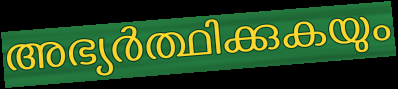
അഭ്യർത്ഥിക്കുകയും